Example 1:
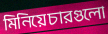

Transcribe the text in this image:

মিনিয়েচারগুলো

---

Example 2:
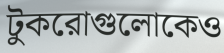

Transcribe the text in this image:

টুকরোগুলোকেও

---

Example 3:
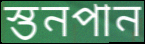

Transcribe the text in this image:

স্তনপান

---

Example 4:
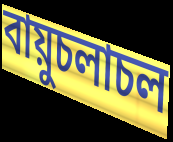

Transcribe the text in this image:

বায়ুচলাচল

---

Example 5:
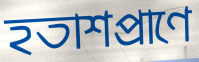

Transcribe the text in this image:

হতাশপ্রাণে